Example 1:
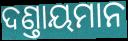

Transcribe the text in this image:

ଦଣ୍ତାୟମାନ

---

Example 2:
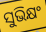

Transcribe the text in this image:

ସୁଭିକ୍ଷଂ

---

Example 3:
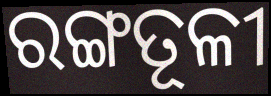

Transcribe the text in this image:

ରଙ୍ଗତୂଳୀ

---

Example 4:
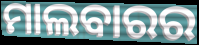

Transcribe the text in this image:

ମାଲବାରର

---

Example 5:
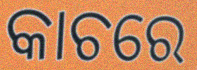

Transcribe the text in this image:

କାଚରେ